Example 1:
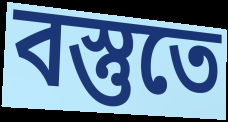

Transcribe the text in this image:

বস্তুতে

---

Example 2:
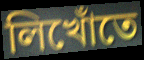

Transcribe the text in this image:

লিখোঁতে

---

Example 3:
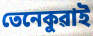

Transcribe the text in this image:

তেনেকুৱাই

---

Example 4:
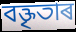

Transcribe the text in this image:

বক্তৃতাৰ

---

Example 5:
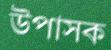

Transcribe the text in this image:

উপাসক